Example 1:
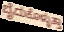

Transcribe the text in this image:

ಬೈದುಕೊಳ್ಳುತ್ತಾ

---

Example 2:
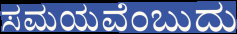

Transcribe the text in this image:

ಸಮಯವೆಂಬುದು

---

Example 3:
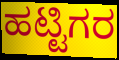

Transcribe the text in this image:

ಹಟ್ಟಿಗರ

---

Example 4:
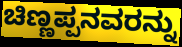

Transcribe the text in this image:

ಚಿಣ್ಣಪ್ಪನವರನ್ನು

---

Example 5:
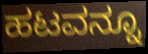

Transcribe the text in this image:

ಹಟವನ್ನೂ